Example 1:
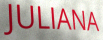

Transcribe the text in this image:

JULIANA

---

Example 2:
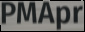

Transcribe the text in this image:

PMApr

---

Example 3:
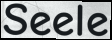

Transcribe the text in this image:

Seele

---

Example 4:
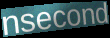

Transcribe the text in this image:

nsecond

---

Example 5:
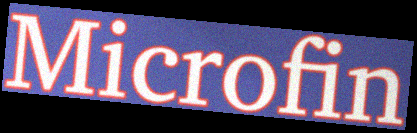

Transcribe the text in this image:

Microfin